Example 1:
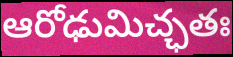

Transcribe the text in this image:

ఆరోఢుమిచ్ఛతః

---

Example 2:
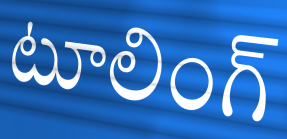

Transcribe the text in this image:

టూలింగ్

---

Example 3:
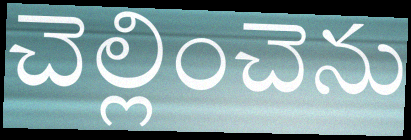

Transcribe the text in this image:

చెల్లించెను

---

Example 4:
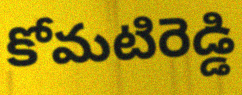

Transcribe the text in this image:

కోమటిరెడ్డి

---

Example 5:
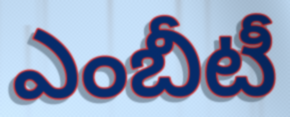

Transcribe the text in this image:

ఎంబీటీ